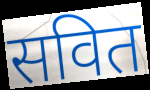
सवित